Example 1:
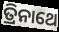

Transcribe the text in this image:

ତ୍ରିନାଥେ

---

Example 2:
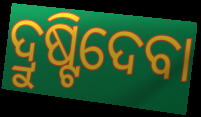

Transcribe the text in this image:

ଦ୍ରୁଷ୍ଟିଦେବା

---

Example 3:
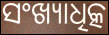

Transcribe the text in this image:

ସଂଖ୍ୟାଧିତ୍କ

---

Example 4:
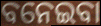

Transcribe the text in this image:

ବନେଇବା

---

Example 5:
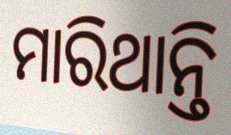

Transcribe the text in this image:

ମାରିଥାନ୍ତି